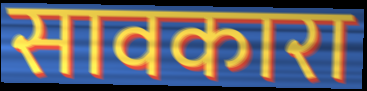
सावकारा